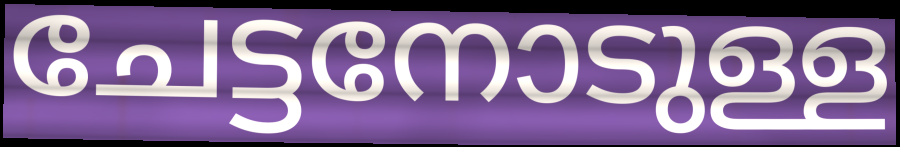
ചേട്ടനോടുള്ള